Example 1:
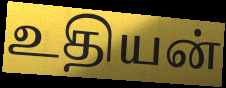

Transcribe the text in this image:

உதியன்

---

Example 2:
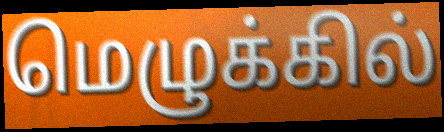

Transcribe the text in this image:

மெழுக்கில்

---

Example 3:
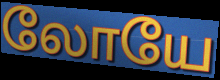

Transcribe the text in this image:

லோயே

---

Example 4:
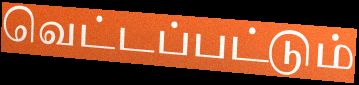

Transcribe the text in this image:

வெட்டப்பட்டும்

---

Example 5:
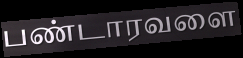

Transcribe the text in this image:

பண்டாரவளை